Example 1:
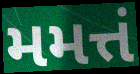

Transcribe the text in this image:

મમત્તં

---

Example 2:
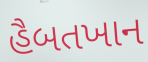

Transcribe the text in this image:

હૈબતખાન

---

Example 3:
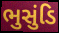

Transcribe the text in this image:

ભુસુંડિ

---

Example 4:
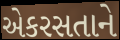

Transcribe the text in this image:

એકરસતાને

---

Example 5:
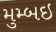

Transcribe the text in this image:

મુમ્બઇ